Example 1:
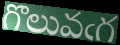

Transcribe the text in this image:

గొలువఁగ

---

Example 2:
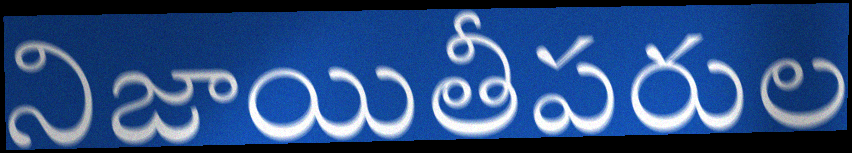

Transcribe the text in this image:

నిజాయితీపరుల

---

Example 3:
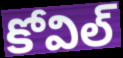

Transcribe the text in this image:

కోవిల్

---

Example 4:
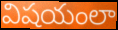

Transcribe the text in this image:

విషయంలా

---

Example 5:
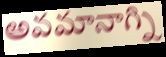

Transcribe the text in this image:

అవమానాగ్ని